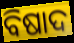
ବିଷାଦ